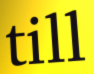
till